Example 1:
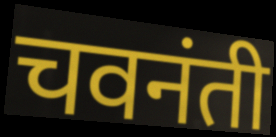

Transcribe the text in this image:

चवनंती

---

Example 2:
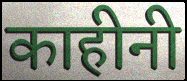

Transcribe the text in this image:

काहीनी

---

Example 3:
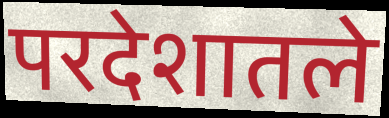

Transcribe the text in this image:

परदेशातले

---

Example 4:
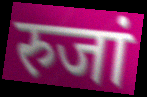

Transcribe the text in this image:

रुजां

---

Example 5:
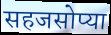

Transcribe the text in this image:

सहजसोप्या